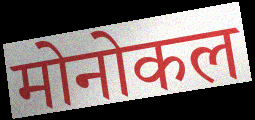
मोनोकल